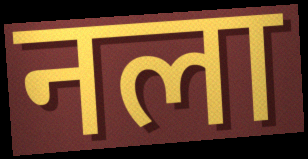
नला